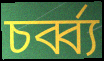
চর্ব্ব্য